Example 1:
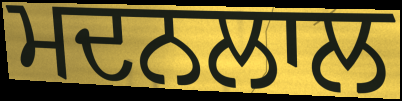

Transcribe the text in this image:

ਮਦਨਲਾਲ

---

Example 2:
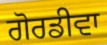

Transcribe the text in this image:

ਗੋਰਡੀਵਾ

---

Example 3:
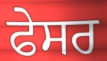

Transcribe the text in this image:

ਫੇਸਰ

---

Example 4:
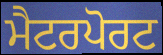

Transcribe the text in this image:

ਮੈਟਰਪੋਰਟ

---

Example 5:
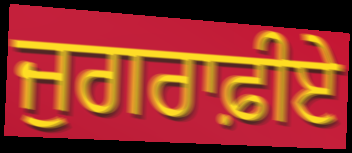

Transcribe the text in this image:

ਜੁਗਰਾਫ਼ੀਏ